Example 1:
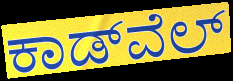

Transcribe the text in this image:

ಕಾಡ್‌ವೆಲ್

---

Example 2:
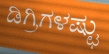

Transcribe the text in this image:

ಡಿಗ್ರಿಗಳಷ್ಟು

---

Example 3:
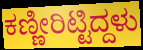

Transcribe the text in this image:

ಕಣ್ಣೀರಿಟ್ಟಿದ್ದಳು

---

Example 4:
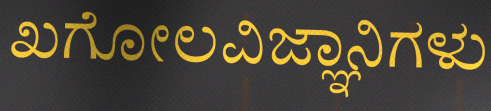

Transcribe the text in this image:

ಖಗೋಲವಿಜ್ಞಾನಿಗಳು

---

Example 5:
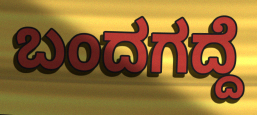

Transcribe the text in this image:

ಬಂದಗದ್ದೆ